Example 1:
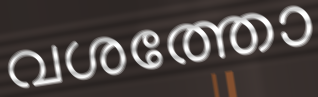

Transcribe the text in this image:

വശത്തോ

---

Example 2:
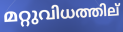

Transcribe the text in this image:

മറ്റുവിധത്തില്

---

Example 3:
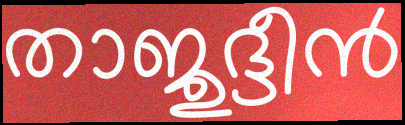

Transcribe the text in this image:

താജുദ്ദീൻ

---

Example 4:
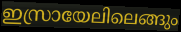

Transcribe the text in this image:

ഇസ്രായേലിലെങ്ങും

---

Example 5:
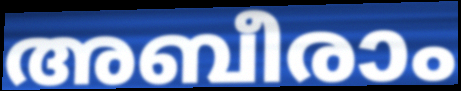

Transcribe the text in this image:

അബീരാം